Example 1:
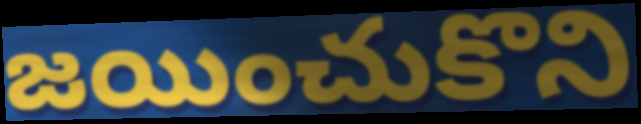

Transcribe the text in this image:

జయించుకొని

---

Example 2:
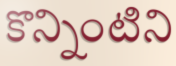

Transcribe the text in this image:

కొన్నింటిని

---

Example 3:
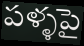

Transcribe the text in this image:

పళ్ళపై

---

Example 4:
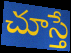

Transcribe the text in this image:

చూస్తే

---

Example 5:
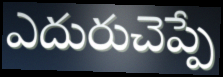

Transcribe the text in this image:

ఎదురుచెప్పే